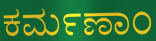
ಕರ್ಮಣಾಂ